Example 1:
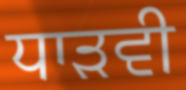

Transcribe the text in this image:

ਧਾੜਵੀ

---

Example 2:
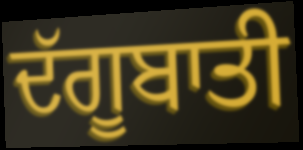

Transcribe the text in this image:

ਦੱਗੂਬਾਤੀ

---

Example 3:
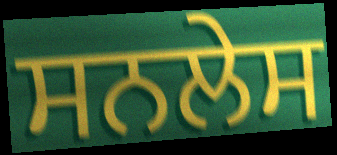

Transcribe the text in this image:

ਸਨਲੇਸ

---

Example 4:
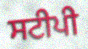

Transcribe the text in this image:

ਸਟੀਪੀ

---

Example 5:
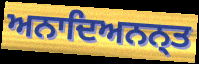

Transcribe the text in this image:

ਅਨਾਦਿਅਨਨ੍ਤ